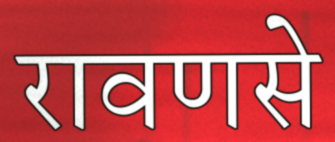
रावणसे